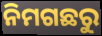
ନିମଗଛରୁ